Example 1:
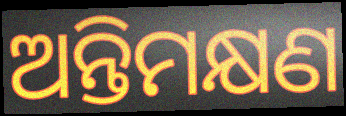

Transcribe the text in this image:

ଅନ୍ତିମକ୍ଷଣ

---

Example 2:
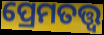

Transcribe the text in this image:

ପ୍ରେମତତ୍ତ୍ୱ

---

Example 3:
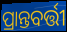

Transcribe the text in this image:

ପ୍ରାନ୍ତବର୍ତ୍ତୀ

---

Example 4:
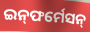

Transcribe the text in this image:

ଇନ୍‍ଫର୍ମେସନ୍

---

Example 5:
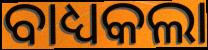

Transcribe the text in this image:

ବାଧ୍ୟକଲା